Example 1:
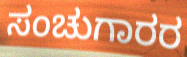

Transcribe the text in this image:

ಸಂಚುಗಾರರ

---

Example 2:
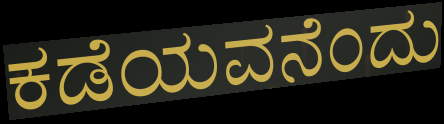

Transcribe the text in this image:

ಕಡೆಯವನೆಂದು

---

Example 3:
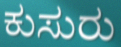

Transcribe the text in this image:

ಕುಸುರು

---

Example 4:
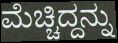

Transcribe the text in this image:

ಮೆಚ್ಚಿದ್ದನ್ನು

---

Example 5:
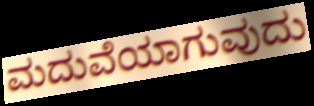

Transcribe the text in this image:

ಮದುವೆಯಾಗುವುದು